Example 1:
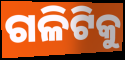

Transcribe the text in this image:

ଗଳିଟିକୁ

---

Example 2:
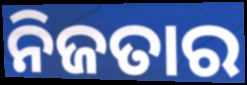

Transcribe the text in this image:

ନିଜତାର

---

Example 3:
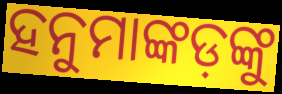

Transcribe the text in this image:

ହନୁମାଙ୍କଡ଼ଙ୍କୁ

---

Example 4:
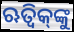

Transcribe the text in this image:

ଋତ୍ୱିକ୍‌ଙ୍କୁ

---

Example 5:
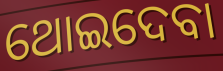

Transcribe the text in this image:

ଥୋଇଦେବା